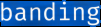
banding